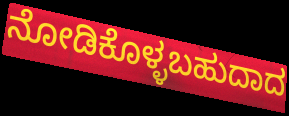
ನೋಡಿಕೊಳ್ಳಬಹುದಾದ